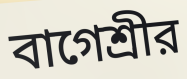
বাগেশ্রীর